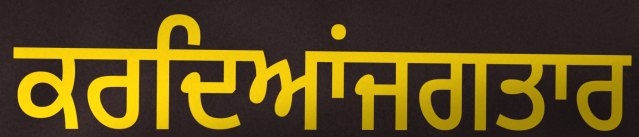
ਕਰਦਿਆਂਜਗਤਾਰ